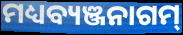
ମଧ୍ୟବ୍ୟଞ୍ଜନାଗମ୍